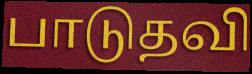
பாடுதவி